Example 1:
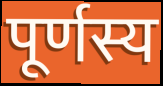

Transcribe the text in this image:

पूर्णस्य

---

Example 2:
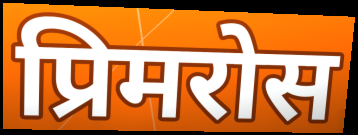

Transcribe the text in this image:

प्रिमरोस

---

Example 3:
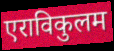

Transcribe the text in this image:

एराविकुलम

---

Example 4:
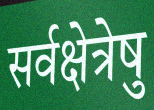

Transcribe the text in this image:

सर्वक्षेत्रेषु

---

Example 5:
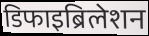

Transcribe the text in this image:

डिफाइब्रिलेशन